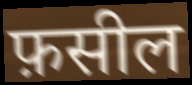
फ़सील